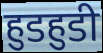
हुडहुडी